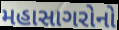
મહાસાગરોનો